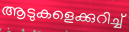
ആടുകളെക്കുറിച്ച്